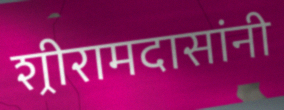
श्रीरामदासांनी